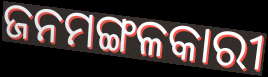
ଜନମଙ୍ଗଳକାରୀ